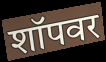
शॉपवर